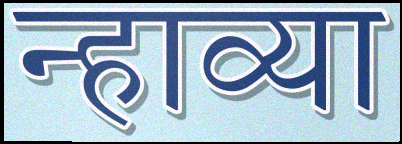
न्हाव्या